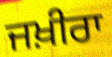
ਜਖ਼ੀਰਾ